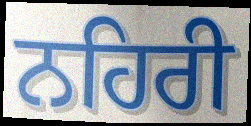
ਨਹਿਰੀ